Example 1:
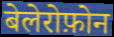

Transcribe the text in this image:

बेलेरोफ़ोन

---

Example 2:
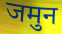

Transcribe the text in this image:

जमुन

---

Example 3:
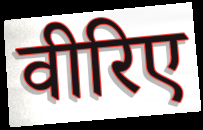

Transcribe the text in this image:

वीरिए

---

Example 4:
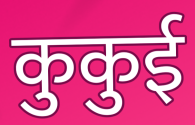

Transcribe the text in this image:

कुकुई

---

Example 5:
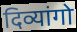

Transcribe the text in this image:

दिव्यांगो